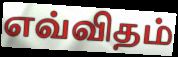
எவ்விதம்